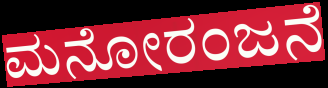
ಮನೋರಂಜನೆ